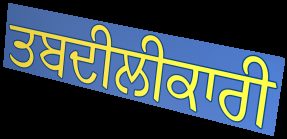
ਤਬਦੀਲੀਕਾਰੀ